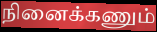
நினைக்கணும்